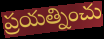
ప్రయత్నించు